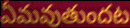
ఏమవుతుందట